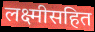
लक्ष्मीसहित